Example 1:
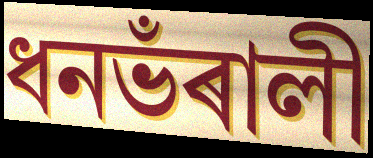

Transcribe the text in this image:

ধনভঁৰালী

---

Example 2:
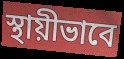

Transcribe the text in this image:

স্থায়ীভাবে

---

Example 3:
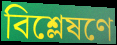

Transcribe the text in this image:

বিশ্লেষণে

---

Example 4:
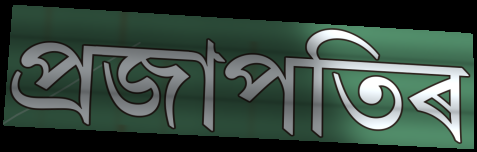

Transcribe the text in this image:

প্ৰজাপতিৰ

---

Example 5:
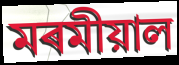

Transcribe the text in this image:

মৰমীয়াল